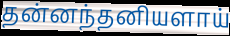
தன்னந்தனியளாய்